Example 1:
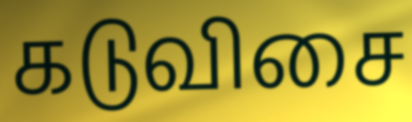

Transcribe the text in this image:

கடுவிசை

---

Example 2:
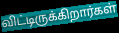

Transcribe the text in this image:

விட்டிருக்கிறார்கள்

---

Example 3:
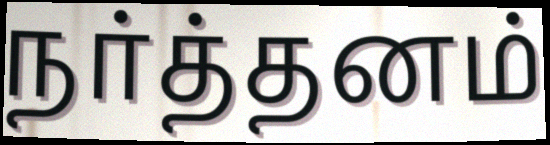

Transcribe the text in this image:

நர்த்தனம்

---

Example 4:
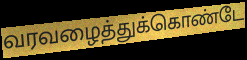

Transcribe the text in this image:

வரவழைத்துக்கொண்டே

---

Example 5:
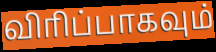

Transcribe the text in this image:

விரிப்பாகவும்